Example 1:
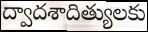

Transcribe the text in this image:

ద్వాదశాదిత్యులకు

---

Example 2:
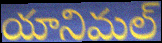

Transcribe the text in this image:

యానిమల్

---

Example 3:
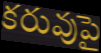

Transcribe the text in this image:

కరువుపై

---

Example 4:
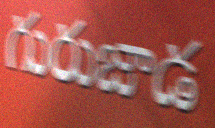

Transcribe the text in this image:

గురుజాడ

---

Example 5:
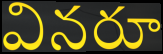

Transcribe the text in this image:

వినరూ